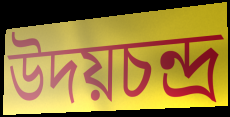
উদয়চন্দ্র